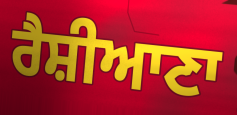
ਰੈਸ਼ੀਆਣਾ